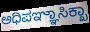
ಅಧಿಪಞ್ಞಾಸಿಕ್ಖಾ